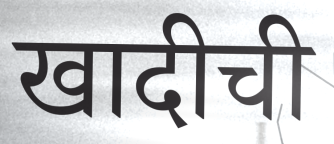
खादीची